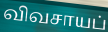
விவசாயப்